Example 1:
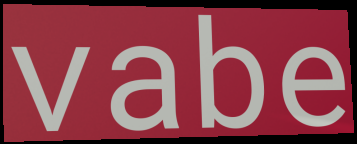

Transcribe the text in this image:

vabe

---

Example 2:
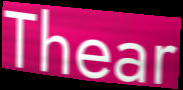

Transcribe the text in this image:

Thear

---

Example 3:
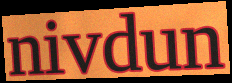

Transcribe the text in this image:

nivdun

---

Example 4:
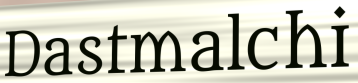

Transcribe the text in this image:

Dastmalchi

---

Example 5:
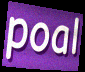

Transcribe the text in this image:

poal